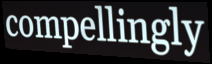
compellingly